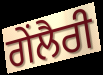
ਗੇਂਲੈਰੀ